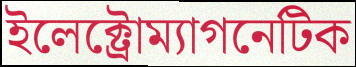
ইলেক্ট্রোম্যাগনেটিক